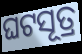
ଘଟସୂତ୍ର